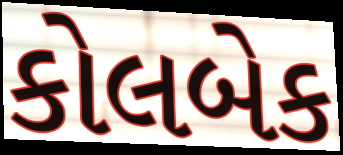
કોલબેક